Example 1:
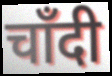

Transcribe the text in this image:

चाँदी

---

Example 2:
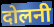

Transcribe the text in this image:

दोलनी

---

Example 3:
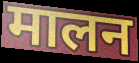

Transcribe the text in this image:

मालन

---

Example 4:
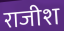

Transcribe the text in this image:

राजीश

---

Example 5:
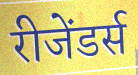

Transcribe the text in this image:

रीजेंडर्स